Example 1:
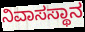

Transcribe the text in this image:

ನಿವಾಸಸ್ಥಾನ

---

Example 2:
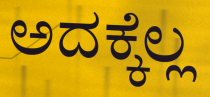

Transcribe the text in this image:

ಅದಕ್ಕೆಲ್ಲ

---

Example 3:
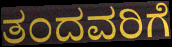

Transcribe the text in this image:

ತಂದವರಿಗೆ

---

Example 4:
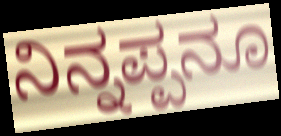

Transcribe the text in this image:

ನಿನ್ನಪ್ಪನೂ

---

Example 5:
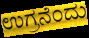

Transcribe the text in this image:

ಉಗ್ರನೆಂದು